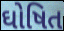
ઘોષિત